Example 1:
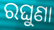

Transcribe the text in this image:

ରଘୁଣା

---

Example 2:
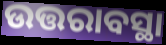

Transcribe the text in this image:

ଉତ୍ତରାବସ୍ଥା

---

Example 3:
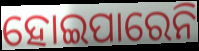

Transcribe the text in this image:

ହୋଇପାରେନି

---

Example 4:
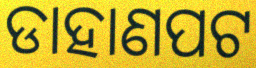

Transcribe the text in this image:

ଡାହାଣପଟ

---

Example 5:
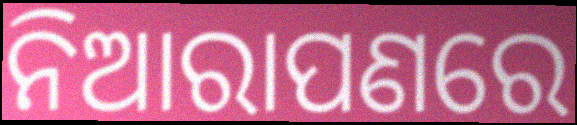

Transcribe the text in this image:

ନିଆରାପଣରେ